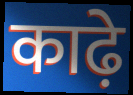
काढ़े